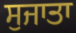
ਸੁਜਾਤਾ